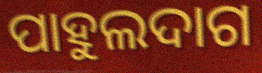
ପାହୁଲଦାଗ